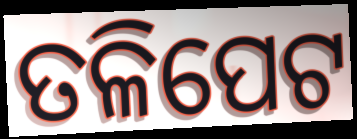
ତଳିପେଟ